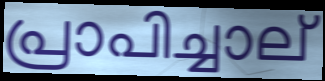
പ്രാപിച്ചാല്